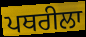
ਪਥਰੀਲਾ